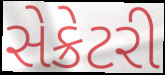
સેક્રેટરી